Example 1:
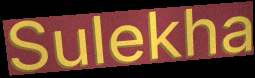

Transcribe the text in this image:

Sulekha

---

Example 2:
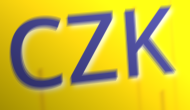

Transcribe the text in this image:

CZK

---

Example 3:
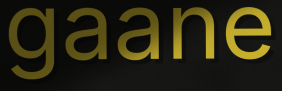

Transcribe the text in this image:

gaane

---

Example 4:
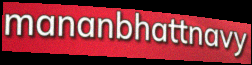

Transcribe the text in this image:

mananbhattnavy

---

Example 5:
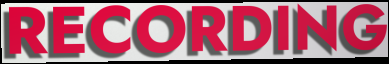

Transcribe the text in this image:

RECORDING